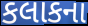
કલાકના